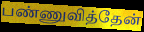
பண்ணுவித்தேன்